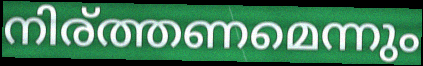
നിര്ത്തണമെന്നും